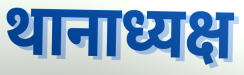
थानाध्यक्ष